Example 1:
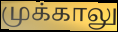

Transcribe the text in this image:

முக்காலு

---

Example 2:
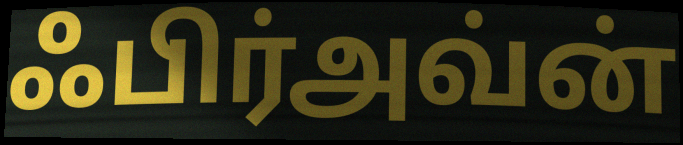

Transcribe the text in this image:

ஃபிர்அவ்ன்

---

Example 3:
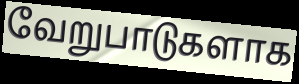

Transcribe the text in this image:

வேறுபாடுகளாக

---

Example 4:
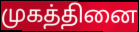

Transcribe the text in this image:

முகத்தினை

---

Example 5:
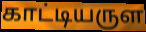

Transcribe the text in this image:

காட்டியருள